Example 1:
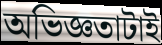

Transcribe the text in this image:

অভিজ্ঞতাটাই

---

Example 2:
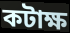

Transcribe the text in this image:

কটাক্ষ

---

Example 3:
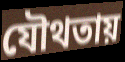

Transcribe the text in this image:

যৌথতায়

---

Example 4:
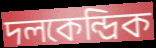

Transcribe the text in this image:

দলকেন্দ্রিক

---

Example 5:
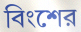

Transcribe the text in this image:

বিংশের